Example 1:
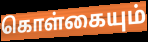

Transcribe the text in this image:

கொள்கையும்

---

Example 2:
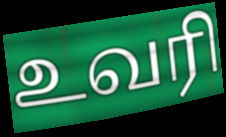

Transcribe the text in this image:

உவரி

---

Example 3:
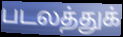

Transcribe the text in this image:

படலத்துக்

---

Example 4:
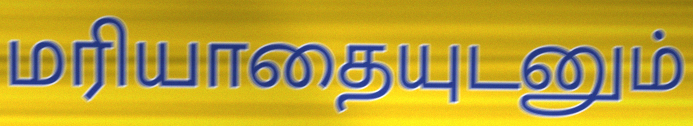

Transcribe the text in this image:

மரியாதையுடனும்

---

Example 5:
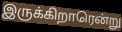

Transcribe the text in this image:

இருக்கிறாரென்று